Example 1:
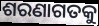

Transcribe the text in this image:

ଶରଣାଗତକୁ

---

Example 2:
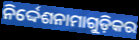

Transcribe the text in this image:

ନିର୍ଦ୍ଦେଶନାମାଗୁଡ଼ିକର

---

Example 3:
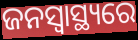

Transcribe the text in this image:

ଜନସ୍ବାସ୍ଥ୍ୟରେ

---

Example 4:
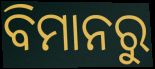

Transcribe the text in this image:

ବିମାନରୁ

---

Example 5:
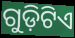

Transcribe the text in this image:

ଗୁଡ଼ିଟିଏ